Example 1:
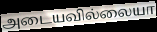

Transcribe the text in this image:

அடையவில்லையா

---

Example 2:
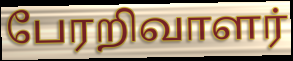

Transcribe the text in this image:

பேரறிவாளர்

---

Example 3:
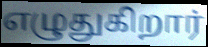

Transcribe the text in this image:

எழுதுகிறார்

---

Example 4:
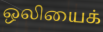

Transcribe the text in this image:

ஒலியைக்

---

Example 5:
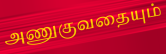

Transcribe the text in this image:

அணுகுவதையும்